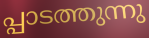
പ്പാടത്തുന്നു